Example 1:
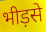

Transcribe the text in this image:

भीड़से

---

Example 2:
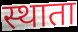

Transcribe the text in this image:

स्थाता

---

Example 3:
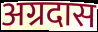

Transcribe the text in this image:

अग्रदास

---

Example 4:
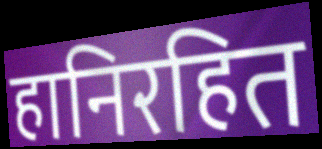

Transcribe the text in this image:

हानिरहित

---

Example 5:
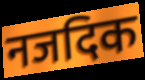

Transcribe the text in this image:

नजदिक